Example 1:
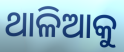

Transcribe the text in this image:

ଥାଳିଆକୁ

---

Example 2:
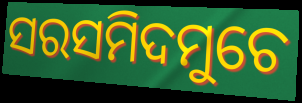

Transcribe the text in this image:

ସରସମିଦମୁଚେ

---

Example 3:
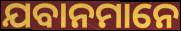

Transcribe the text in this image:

ଯବାନମାନେ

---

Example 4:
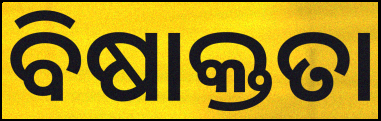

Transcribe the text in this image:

ବିଷାକ୍ତତା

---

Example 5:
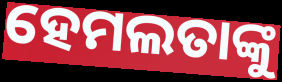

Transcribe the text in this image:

ହେମଲତାଙ୍କୁ